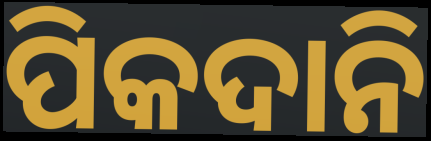
ପିକଦାନି